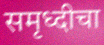
समृध्दीचा